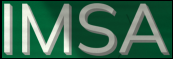
IMSA